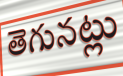
తెగునట్లు